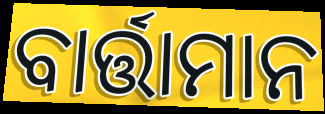
ବାର୍ତ୍ତାମାନ